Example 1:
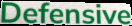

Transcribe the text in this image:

Defensive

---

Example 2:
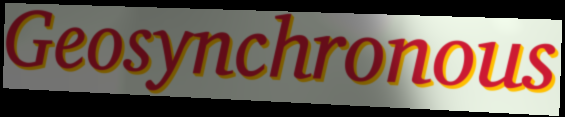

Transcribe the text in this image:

Geosynchronous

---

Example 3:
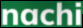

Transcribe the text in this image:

nachi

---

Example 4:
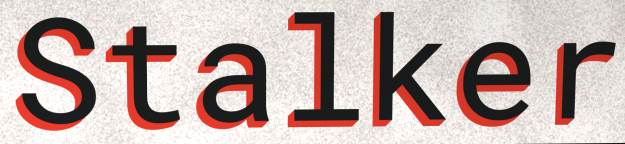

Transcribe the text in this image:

Stalker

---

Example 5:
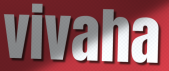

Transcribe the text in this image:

vivaha